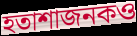
হতাশাজনকও